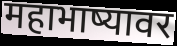
महाभाष्यावर